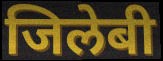
जिलेबी